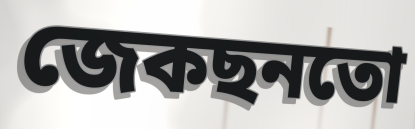
জেকছনতো